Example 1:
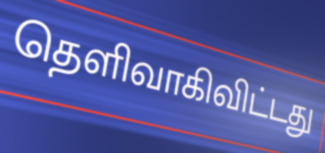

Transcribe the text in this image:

தெளிவாகிவிட்டது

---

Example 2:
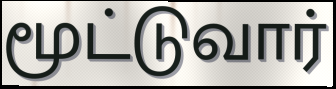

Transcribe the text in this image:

மூட்டுவார்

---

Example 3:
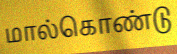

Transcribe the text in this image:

மால்கொண்டு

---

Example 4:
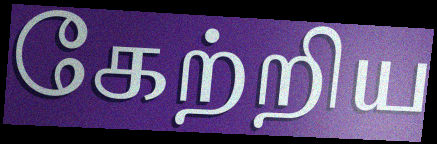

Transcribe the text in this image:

கேற்றிய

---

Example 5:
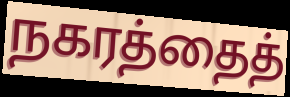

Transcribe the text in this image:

நகரத்தைத்